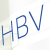
HBV